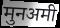
मुनअमी